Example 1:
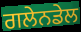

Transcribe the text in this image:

ਗਲੇਨਡੇਲ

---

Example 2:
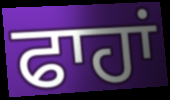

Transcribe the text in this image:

ਫਾਹਾਂ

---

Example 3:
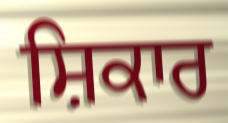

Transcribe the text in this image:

ਸ਼ਿਕਾਰ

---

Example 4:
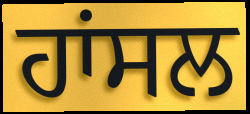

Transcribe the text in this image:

ਹਾਂਸਲ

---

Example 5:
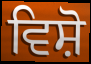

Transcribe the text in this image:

ਵਿਸ਼ੋ